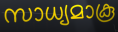
സാധ്യമാകൂ